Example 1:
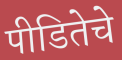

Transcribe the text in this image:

पीडितेचे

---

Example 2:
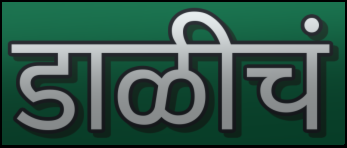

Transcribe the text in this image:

डाळीचं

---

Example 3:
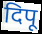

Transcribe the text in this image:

दिपू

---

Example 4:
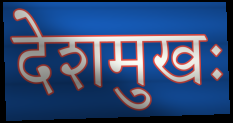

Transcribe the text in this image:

देशमुखः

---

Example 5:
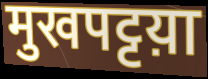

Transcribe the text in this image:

मुखपट्टय़ा